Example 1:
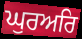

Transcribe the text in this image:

ਘੁਰਅਰਿ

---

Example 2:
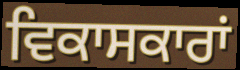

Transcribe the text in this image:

ਵਿਕਾਸਕਾਰਾਂ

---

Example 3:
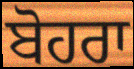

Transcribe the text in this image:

ਬੋਹਰਾ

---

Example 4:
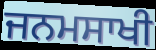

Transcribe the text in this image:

ਜਨਮਸਾਖੀ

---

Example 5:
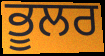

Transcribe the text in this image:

ਭੂਲਰ